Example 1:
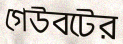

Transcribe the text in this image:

গেউবটের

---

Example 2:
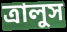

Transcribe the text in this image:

ত্রালুস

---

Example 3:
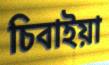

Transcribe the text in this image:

চিবাইয়া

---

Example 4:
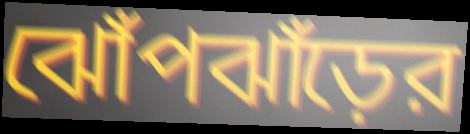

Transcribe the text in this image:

ঝোঁপঝাঁড়ের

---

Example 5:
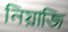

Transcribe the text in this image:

নিয়াজি